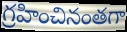
గ్రహించినంతగా